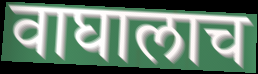
वाघालाच